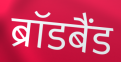
ब्रॉडबैंड